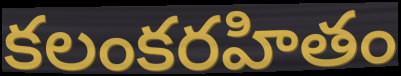
కలంకరహితం